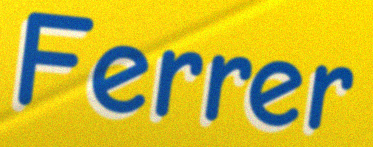
Ferrer